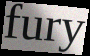
fury